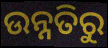
ଉନ୍ନତିରୁ